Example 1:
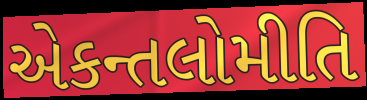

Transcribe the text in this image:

એકન્તલોમીતિ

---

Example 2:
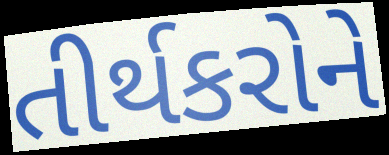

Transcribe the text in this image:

તીર્થકરોને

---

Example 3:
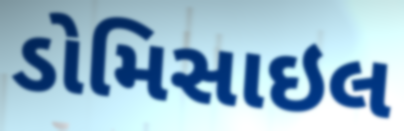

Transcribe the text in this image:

ડોમિસાઇલ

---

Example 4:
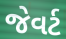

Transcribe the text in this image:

જેવર્ટ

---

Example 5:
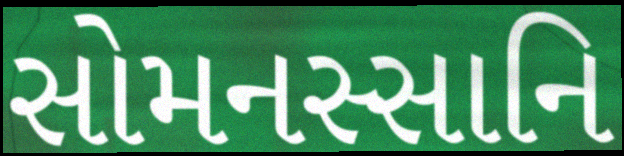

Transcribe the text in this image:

સોમનસ્સાનિ